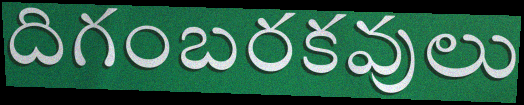
దిగంబరకవులు